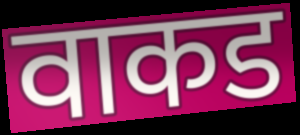
वाकड